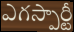
ఎగస్పార్టీ